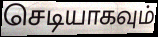
செடியாகவும்